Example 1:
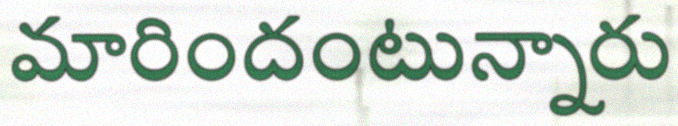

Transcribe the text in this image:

మారిందంటున్నారు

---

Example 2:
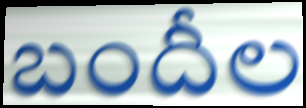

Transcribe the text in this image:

బందీల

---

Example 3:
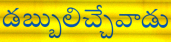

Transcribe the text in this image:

డబ్బులిచ్చేవాడు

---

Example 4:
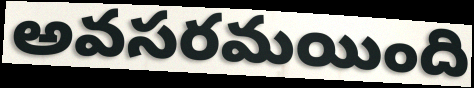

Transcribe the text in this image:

అవసరమయింది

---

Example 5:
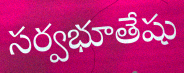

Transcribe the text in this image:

సర్వభూతేషు